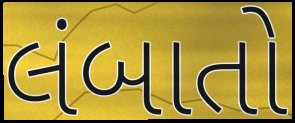
લંબાતો